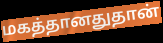
மகத்தானதுதான்